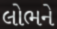
લોભને